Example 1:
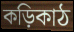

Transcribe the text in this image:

কড়িকাঠ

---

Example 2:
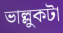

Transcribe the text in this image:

ভাল্লুকটা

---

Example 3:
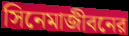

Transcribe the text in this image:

সিনেমাজীবনের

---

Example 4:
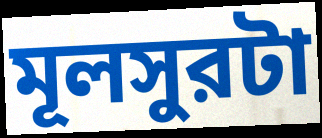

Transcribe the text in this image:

মূলসুরটা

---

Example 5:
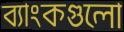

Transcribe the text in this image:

ব্যাংকগুলো